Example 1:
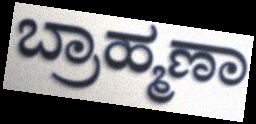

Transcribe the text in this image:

ಬ್ರಾಹ್ಮಣಾ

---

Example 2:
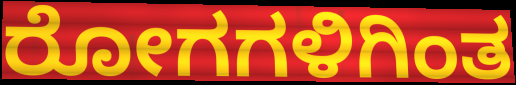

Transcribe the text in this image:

ರೋಗಗಳಿಗಿಂತ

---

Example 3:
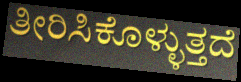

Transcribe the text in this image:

ತೀರಿಸಿಕೊಳ್ಳುತ್ತದೆ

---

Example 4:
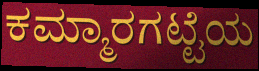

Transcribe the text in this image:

ಕಮ್ಮಾರಗಟ್ಟೆಯ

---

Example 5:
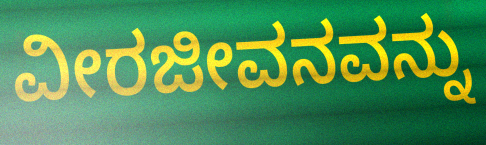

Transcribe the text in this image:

ವೀರಜೀವನವನ್ನು